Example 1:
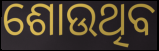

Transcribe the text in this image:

ଶୋଉଥିବ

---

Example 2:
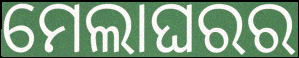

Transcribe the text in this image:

ମେଲାଘରର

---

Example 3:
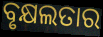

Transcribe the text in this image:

ବୃକ୍ଷଲତାର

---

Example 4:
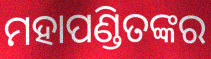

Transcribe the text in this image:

ମହାପଣ୍ଡିତଙ୍କର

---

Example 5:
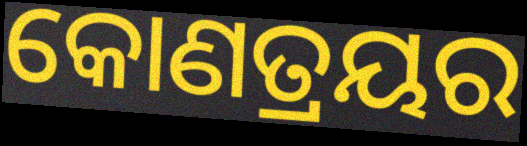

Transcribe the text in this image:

କୋଣତ୍ରୟର